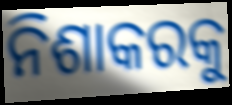
ନିଶାକରକୁ